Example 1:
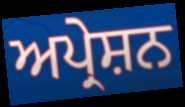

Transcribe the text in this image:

ਅਪ੍ਰੇਸ਼ਨ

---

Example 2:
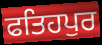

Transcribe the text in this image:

ਫਤਿਹਪੁਰ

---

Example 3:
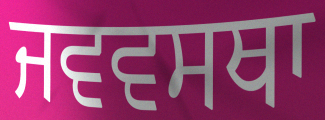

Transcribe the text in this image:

ਜਵਵਸਥਾ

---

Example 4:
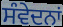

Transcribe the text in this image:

ਸੰਵੇਦਨਾਂ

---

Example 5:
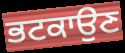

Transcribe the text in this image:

ਭਟਕਾਉਣ